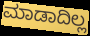
ಮಾಡಾದಿಲ್ಲ